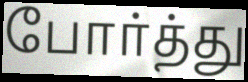
போர்த்து